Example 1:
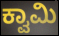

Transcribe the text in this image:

ಕ್ವಾಮಿ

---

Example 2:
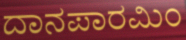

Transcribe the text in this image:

ದಾನಪಾರಮಿಂ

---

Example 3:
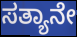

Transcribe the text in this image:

ಸತ್ಯಾನೇ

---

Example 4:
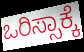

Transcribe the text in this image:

ಒರಿಸ್ಸಾಕ್ಕೆ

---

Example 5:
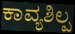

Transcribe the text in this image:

ಕಾವ್ಯಶಿಲ್ಪ